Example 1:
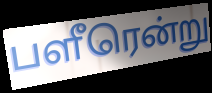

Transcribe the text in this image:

பளீரென்று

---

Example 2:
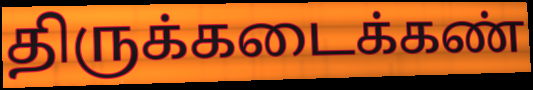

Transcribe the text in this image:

திருக்கடைக்கண்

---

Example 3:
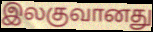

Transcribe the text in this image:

இலகுவானது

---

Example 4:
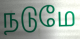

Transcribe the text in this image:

நடுமே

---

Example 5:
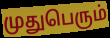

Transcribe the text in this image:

முதுபெரும்